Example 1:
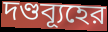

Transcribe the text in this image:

দণ্ডব্যূহের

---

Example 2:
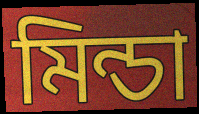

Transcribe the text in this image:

মিন্ডা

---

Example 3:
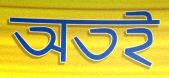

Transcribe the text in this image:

অতই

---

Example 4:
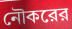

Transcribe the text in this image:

নৌকরের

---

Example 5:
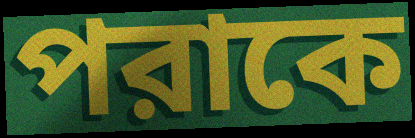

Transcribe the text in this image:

পরাকে